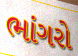
ભાંગરો